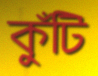
কুঁটি